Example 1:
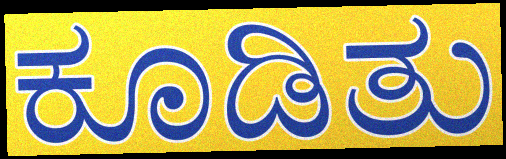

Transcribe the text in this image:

ಕೂಡಿತು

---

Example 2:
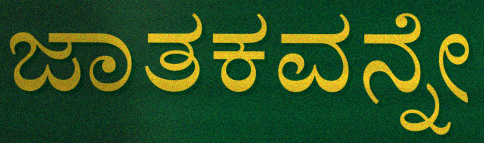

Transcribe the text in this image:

ಜಾತಕವನ್ನೇ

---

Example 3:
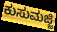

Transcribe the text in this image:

ಕುಸುಮಜ್ಜಿ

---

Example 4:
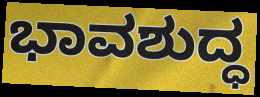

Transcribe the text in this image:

ಭಾವಶುದ್ಧ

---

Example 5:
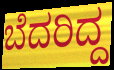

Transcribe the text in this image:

ಬೆದರಿದ್ದ